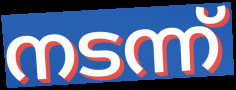
നടന്ന്